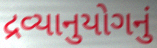
દ્રવ્યાનુયોગનું